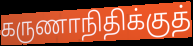
கருணாநிதிக்குத்